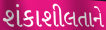
શંકાશીલતાને